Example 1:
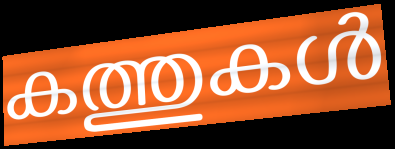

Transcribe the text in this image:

കത്തുകൾ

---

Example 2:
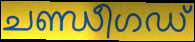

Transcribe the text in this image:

ചണ്ഡീഗഡ്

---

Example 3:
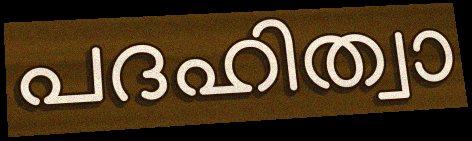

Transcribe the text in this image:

പദഹിത്വാ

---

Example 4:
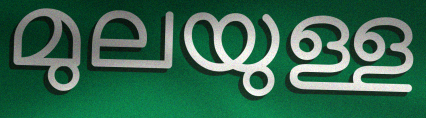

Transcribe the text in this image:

മുലയുള്ള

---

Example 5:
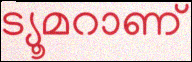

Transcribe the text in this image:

ട്യൂമറാണ്